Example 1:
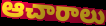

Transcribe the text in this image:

ఆచారాలు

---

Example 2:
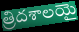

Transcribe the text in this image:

త్రిదశాలయై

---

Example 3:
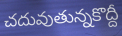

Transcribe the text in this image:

చదువుతున్నకొద్దీ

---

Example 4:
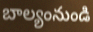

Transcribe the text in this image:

బాల్యంనుండి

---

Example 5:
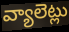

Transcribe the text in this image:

వ్యాలెట్లు